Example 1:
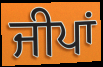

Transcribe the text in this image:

ਜੀਪਾਂ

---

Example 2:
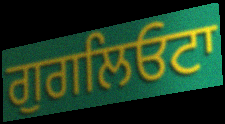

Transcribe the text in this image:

ਗੁਗਲਿਓਟਾ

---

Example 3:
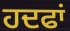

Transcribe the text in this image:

ਹਦਫਾਂ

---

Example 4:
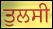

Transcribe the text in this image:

ਤੁਲਸੀ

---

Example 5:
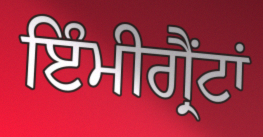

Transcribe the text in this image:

ਇੰਮੀਗ੍ਰੈਂਟਾਂ